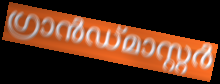
ഗ്രാൻഡ്മാസ്റ്റർ